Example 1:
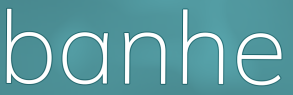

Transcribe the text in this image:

banhe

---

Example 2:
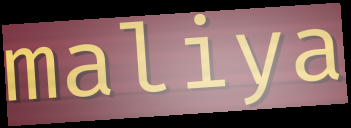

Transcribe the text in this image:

maliya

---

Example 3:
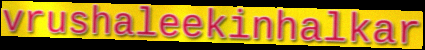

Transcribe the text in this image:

vrushaleekinhalkar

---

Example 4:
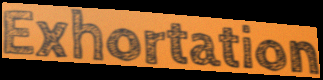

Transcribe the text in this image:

Exhortation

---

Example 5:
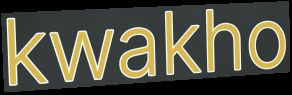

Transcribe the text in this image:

kwakho